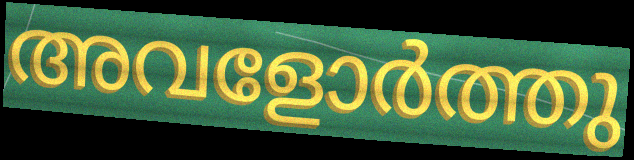
അവളോർത്തു